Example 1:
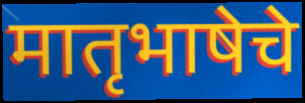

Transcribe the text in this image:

मातृभाषेचे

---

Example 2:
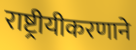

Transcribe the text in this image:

राष्ट्रीयीकरणाने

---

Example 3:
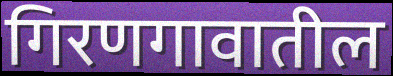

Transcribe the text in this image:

गिरणगावातील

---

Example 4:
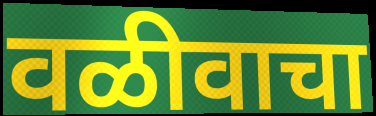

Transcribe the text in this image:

वळीवाचा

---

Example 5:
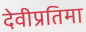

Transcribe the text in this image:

देवीप्रतिमा